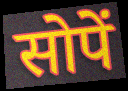
सोपें